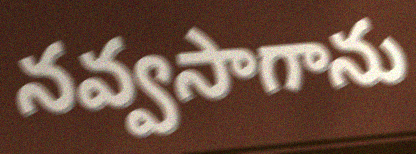
నవ్వసాగాను